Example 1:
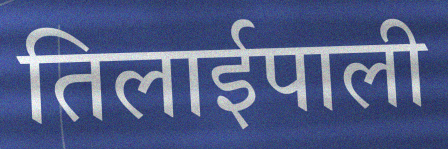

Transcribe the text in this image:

तिलाईपाली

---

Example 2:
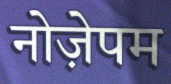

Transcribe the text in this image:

नोज़ेपम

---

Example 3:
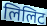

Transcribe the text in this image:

लिलिट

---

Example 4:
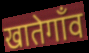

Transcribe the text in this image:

खातेगाँव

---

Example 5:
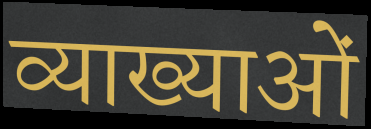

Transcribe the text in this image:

व्याख्याओं